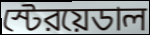
স্টেরয়েডাল